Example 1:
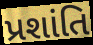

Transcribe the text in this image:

પ્રશાંતિ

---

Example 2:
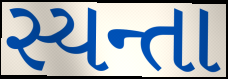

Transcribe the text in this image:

સ્યન્તા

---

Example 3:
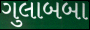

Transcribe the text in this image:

ગુલાબબા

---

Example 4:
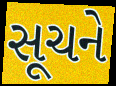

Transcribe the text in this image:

સૂચને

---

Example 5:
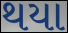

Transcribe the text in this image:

થયા